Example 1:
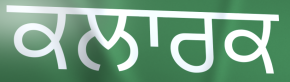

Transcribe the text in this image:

ਕਲਾਰਕ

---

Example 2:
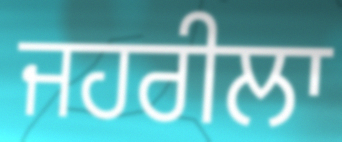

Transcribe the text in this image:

ਜਹਰੀਲਾ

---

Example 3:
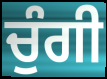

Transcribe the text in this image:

ਚੁੰਗੀ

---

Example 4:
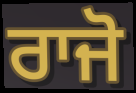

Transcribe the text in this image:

ਰਾਜੋ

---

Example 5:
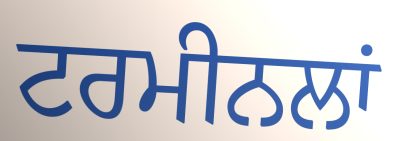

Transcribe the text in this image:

ਟਰਮੀਨਲਾਂ